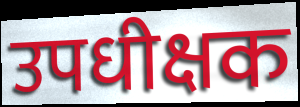
उपधीक्षक